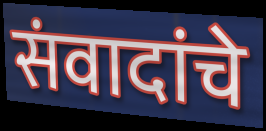
संवादांचे